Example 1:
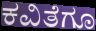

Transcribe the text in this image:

ಕವಿತೆಗೂ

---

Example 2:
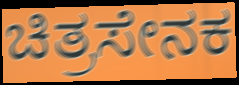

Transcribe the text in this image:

ಚಿತ್ರಸೇನಕ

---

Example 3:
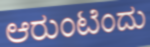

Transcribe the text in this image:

ಆರುಂಟೆಂದು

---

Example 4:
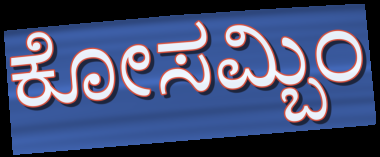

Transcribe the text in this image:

ಕೋಸಮ್ಬಿಂ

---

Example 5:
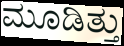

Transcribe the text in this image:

ಮೂಡಿತ್ತು